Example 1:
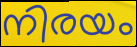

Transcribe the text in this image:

നിരയം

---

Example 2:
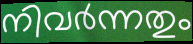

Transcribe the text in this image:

നിവർന്നതും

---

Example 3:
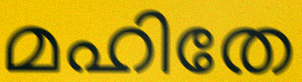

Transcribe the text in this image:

മഹിതേ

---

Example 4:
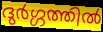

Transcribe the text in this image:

ദുർഗ്ഗത്തിൽ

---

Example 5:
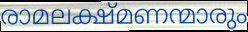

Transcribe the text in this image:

രാമലക്ഷ്മണന്മാരും